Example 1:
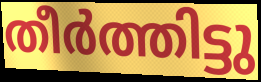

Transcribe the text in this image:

തീർത്തിട്ടു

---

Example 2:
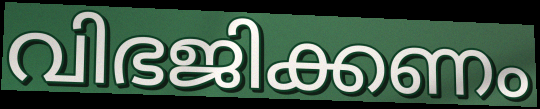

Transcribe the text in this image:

വിഭജിക്കണം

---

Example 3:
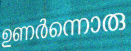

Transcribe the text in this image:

ഉണർന്നൊരു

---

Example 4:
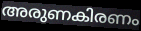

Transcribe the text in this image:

അരുണകിരണം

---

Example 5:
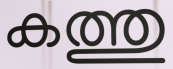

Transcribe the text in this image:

കത്തു